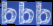
bbb